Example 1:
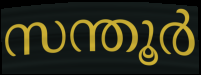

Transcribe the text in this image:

സന്തൂർ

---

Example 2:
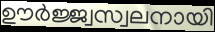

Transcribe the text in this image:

ഊർജ്ജ്വസ്വലനായി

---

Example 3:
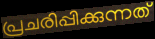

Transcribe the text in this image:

പ്രചരിപ്പിക്കുന്നത്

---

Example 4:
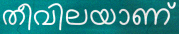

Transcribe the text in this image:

തീവിലയാണ്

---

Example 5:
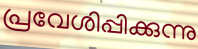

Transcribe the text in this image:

പ്രവേശിപ്പിക്കുന്നു